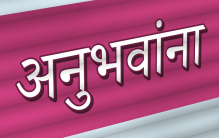
अनुभवांना